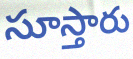
సూస్తారు